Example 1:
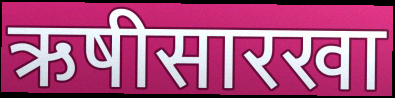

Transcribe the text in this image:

ऋषीसारखा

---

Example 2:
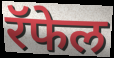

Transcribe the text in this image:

रॅफेल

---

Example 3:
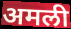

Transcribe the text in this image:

अमली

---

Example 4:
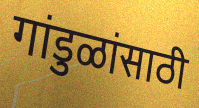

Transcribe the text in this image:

गांडुळांसाठी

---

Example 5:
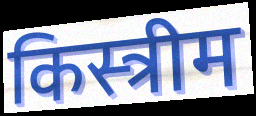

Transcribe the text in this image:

किस्त्रीम